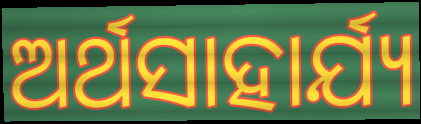
ଅର୍ଥସାହାର୍ଯ୍ୟ